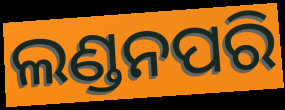
ଲଣ୍ଡନପରି